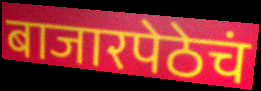
बाजारपेठेचं